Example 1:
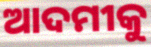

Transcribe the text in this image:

ଆଦମୀକୁ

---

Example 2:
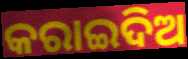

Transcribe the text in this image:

କରାଇଦିଅ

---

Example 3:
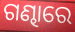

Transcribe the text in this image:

ଗଣ୍ଢାରେ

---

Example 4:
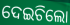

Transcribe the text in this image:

ଦେଇଚିଲୋ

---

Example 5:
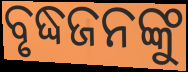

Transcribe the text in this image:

ବୃଦ୍ଧଜନଙ୍କୁ